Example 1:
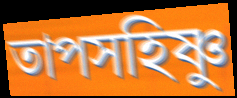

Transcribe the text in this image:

তাপসহিষ্ণু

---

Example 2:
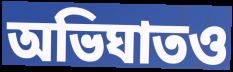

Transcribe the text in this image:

অভিঘাতও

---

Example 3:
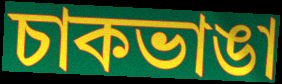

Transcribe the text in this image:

চাকভাঙা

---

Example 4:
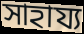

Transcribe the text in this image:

সাহায্য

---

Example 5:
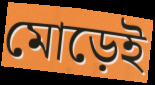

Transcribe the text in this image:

মোড়েই